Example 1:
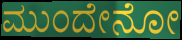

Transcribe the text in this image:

ಮುಂದೇನೋ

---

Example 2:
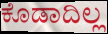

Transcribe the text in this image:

ಕೊಡಾದಿಲ್ಲ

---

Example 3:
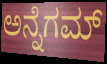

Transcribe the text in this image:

ಅನ್ನೆಗಮ್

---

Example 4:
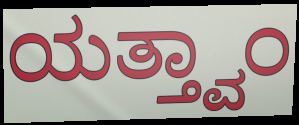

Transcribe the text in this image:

ಯತ್ತ್ವಾಂ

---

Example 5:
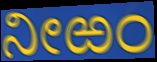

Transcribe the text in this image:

ನೀಱಂ